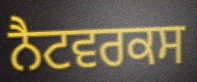
ਨੈਟਵਰਕਸ